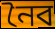
নৈব